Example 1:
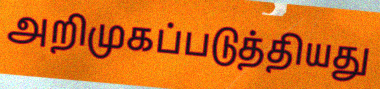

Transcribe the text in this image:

அறிமுகப்படுத்தியது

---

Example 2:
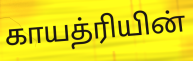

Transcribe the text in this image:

காயத்ரியின்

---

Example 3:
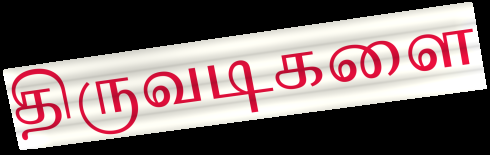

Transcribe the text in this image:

திருவடிகளை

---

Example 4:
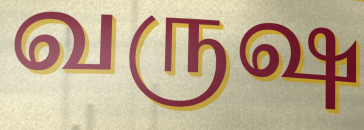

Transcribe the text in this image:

வருஷ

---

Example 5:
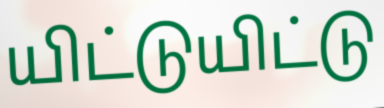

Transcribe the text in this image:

யிட்டுயிட்டு